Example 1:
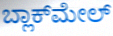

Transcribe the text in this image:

ಬ್ಲಾಕ್‌ಮೇಲ್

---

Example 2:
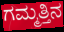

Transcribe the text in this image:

ಗಮ್ಮತ್ತಿನ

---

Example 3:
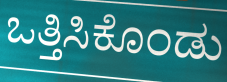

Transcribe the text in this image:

ಒತ್ತಿಸಿಕೊಂಡು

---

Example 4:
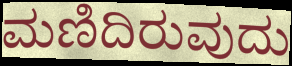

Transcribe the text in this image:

ಮಣಿದಿರುವುದು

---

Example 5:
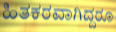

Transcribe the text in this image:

ಹಿತಕರವಾಗಿದ್ದರೂ